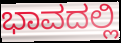
ಭಾವದಲ್ಲಿ